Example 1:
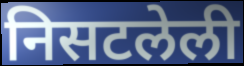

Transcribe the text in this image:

निसटलेली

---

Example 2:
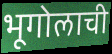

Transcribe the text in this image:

भूगोलाची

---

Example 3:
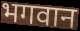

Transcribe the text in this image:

भगवान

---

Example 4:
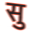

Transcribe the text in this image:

सु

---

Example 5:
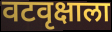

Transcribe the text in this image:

वटवृक्षाला